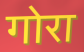
गोरा